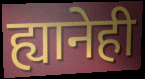
ह्यानेही